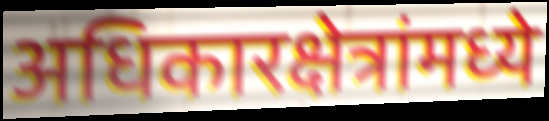
अधिकारक्षेत्रांमध्ये